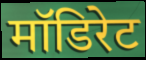
मॉडिरेट